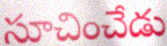
సూచించేడు